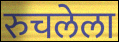
रुचलेला